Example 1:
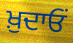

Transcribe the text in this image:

ਖ਼ੁਦਾਓਂ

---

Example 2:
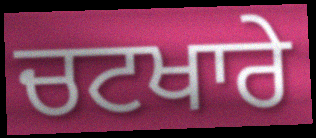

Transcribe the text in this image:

ਚਟਖਾਰੇ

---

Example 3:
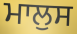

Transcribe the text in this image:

ਮਾਲੁਸ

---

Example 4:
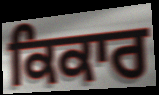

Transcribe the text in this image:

ਕਿਕਾਰ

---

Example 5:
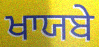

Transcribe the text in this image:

ਖਾਯਬੇ